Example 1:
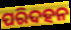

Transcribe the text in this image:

ପରିଦହନ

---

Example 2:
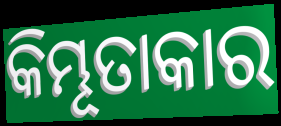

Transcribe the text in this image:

କିମ୍ଭୂତାକାର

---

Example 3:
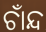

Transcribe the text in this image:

ଚାଁନ୍ଦ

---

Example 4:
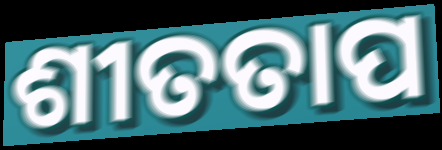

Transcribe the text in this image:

ଶୀତତାପ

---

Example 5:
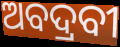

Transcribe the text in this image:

ଅବଦ୍ରବୀ